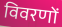
विवरणों